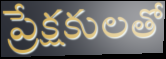
ప్రేక్షకులతో